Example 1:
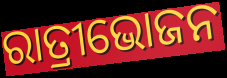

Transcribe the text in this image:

ରାତ୍ରୀଭୋଜନ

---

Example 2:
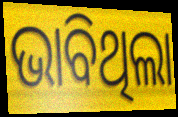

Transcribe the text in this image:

ଭାବିଥିଲା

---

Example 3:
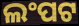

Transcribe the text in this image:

ଲଂପଟ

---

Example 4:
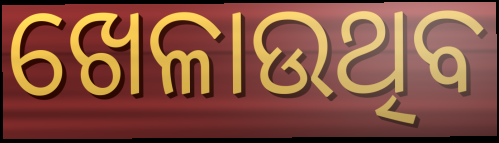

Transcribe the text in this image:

ଖେଳାଉଥିବ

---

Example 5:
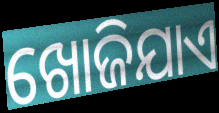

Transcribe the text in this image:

ଖୋଜିଯାଏ